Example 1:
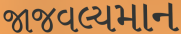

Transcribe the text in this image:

જાજવલ્યમાન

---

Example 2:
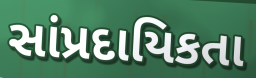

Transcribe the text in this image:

સાંપ્રદાયિકતા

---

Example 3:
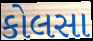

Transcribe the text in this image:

કોલસા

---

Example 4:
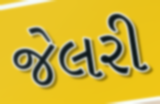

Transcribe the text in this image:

જેલરી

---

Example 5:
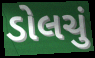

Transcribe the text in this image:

ડોલચું